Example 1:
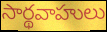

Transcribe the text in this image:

సార్థవాహులు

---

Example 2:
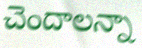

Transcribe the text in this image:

చెందాలన్నా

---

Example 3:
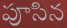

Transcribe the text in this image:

పూసిన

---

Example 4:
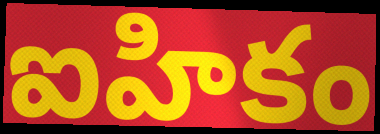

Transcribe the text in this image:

ఐహికం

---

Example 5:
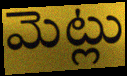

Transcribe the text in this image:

మెట్లు